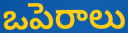
ఒపెరాలు